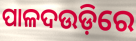
ପାଳଦଉଡ଼ିରେ